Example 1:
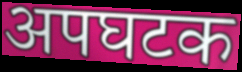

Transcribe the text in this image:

अपघटक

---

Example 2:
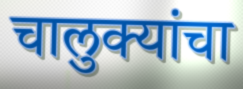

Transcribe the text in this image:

चालुक्यांचा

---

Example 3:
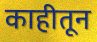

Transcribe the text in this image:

काहीतून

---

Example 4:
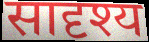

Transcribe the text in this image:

सादृश्य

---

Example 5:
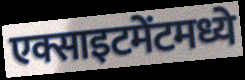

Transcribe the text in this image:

एक्साइटमेंटमध्ये